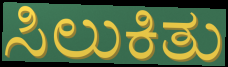
ಸಿಲುಕಿತು